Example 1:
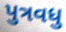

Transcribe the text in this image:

પુત્રવધુ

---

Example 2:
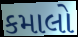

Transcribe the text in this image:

કમાલો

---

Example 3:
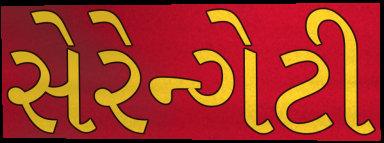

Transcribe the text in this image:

સેરેન્ગેટી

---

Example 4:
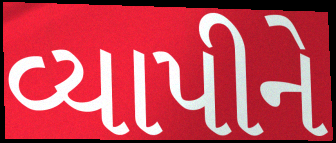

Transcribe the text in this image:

વ્યાપીને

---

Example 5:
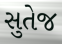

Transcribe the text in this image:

સુતેજ